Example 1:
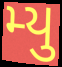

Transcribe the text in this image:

મ્યુ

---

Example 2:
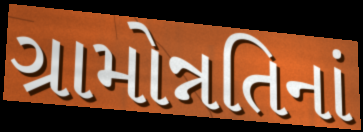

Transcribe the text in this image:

ગ્રામોન્નતિનાં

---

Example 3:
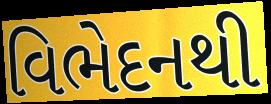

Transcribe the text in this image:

વિભેદનથી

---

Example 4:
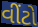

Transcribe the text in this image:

વીંટો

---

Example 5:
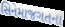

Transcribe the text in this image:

સિનેમાજગતના